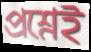
প্রশ্নেই